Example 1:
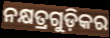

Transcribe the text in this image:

ନକ୍ଷତ୍ରଗୁଡ଼ିକର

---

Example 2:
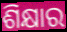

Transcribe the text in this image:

ଶିକ୍ଷାର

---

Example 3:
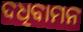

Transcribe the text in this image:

ଦଧିବାମନ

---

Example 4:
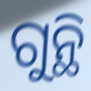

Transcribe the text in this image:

ଗୁନ୍ଥି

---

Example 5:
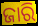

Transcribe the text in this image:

ଜାରି